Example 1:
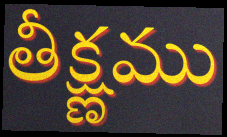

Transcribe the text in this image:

తీక్ష్ణము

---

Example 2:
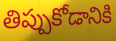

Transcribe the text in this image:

తిప్పుకోడానికి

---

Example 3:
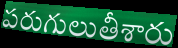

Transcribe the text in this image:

పరుగులుతీశారు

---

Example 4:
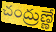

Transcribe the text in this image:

చంద్రుణ్ణే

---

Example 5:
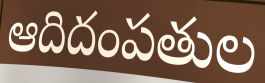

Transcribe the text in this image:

ఆదిదంపతుల